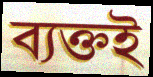
ব্যক্তই